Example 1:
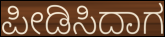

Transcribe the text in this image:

ಪೀಡಿಸಿದಾಗ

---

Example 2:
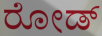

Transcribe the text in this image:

ರೋಡ್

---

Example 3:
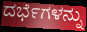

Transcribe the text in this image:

ದರ್ಭೆಗಳನ್ನು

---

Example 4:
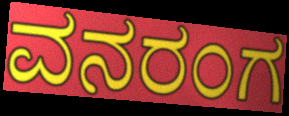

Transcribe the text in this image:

ವನರಂಗ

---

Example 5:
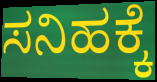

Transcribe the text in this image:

ಸನಿಹಕ್ಕೆ